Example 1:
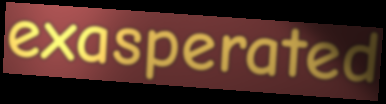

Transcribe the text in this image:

exasperated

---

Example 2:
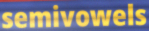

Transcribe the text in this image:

semivowels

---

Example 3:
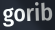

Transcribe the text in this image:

gorib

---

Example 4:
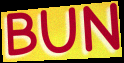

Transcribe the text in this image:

BUN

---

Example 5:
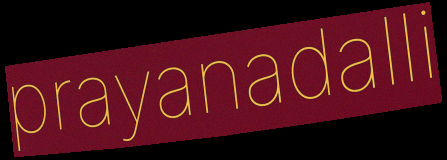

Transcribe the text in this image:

prayanadalli